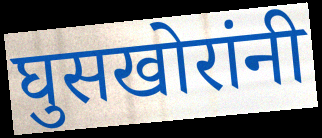
घुसखोरांनी